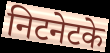
निटनेटके